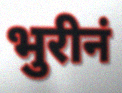
भुरीनं